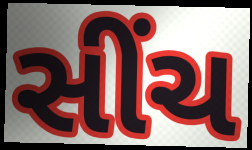
સીંચ